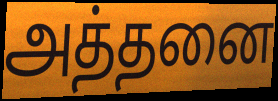
அத்தனை